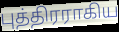
புத்திரராகிய